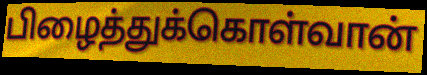
பிழைத்துக்கொள்வான்